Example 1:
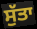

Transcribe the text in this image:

ਸੁੱਤਾ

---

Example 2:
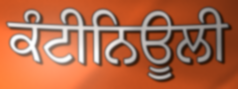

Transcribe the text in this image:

ਕੰਟੀਨਿਊਲੀ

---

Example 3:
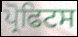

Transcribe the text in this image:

ਪ੍ਰੋਫਿਟਸ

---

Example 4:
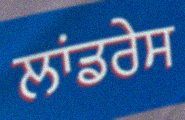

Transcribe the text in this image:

ਲਾਂਡਰੇਸ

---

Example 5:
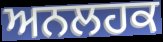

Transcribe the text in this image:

ਅਨਲਹਕ